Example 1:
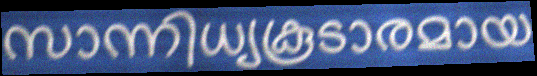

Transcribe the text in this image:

സാന്നിധ്യകൂടാരമായ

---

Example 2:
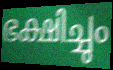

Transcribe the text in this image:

ഭക്ഷിച്ചും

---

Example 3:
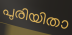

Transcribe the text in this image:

പുരിയിതാ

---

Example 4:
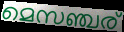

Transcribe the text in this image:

മെസഞ്ചര്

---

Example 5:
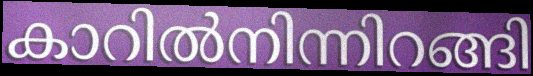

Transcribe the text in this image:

കാറിൽനിന്നിറങ്ങി